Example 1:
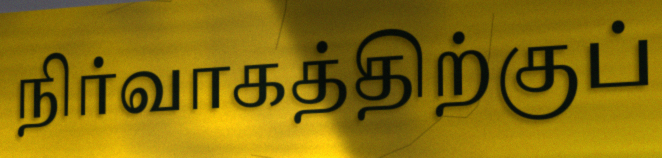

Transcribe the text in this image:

நிர்வாகத்திற்குப்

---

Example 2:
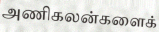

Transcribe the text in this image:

அணிகலன்களைக்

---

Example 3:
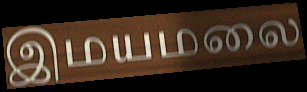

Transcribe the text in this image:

இமயமலை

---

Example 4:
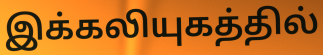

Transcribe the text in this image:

இக்கலியுகத்தில்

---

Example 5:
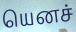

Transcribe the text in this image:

யெனச்